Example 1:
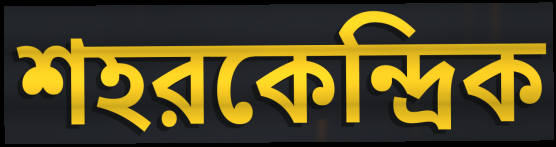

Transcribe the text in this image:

শহরকেন্দ্রিক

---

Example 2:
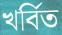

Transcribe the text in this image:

খর্বিত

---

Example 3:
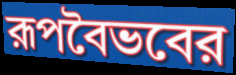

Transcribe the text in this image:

রূপবৈভবের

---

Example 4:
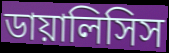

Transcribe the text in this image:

ডায়ালিসিস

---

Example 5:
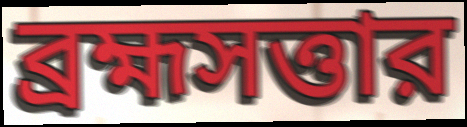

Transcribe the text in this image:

ব্রহ্মসত্তার